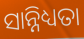
ସାନ୍ନିଧ୍ୟତା